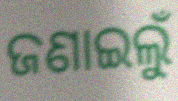
ଜଣାଇଲୁଁ